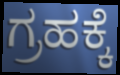
ಗ್ರಹಕ್ಕೆ